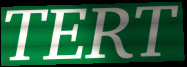
TERT